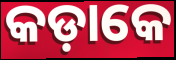
କଡ଼ାକେ